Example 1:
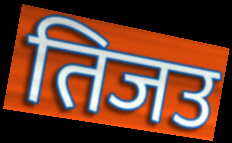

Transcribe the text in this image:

तिजउ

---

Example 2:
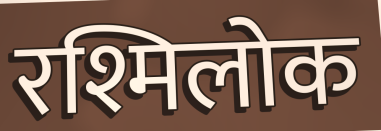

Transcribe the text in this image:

रश्मिलोक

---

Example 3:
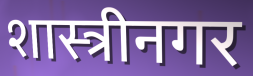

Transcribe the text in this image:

शास्त्रीनगर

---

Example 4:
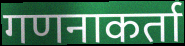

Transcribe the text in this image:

गणनाकर्ता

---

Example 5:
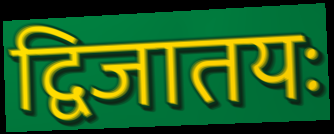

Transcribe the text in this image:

द्विजातयः